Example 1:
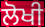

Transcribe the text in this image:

ਲੋਖੀ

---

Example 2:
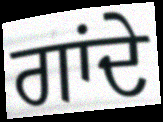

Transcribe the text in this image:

ਗਾਂਦੇ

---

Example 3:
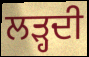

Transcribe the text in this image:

ਲੜ੍ਹਦੀ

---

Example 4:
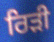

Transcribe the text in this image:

ਰਿੜੀ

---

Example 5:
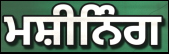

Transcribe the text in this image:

ਮਸ਼ੀਨਿੰਗ